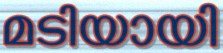
മടിയായി